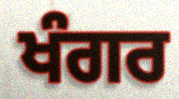
ਖੰਗਰ